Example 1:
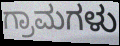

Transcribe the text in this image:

ಗ್ರಾಮಗಳು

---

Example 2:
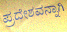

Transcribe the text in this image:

ಪ್ರದೇಶವನ್ನಾಗಿ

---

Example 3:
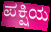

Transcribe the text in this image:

ಪಕ್ಷಿಯ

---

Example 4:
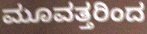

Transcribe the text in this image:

ಮೂವತ್ತರಿಂದ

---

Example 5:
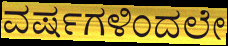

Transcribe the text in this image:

ವರ್ಷಗಳಿಂದಲೇ